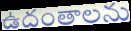
ఉదంతాలను